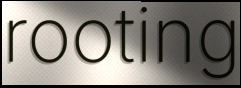
rooting